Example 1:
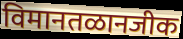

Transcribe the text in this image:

विमानतळानजीक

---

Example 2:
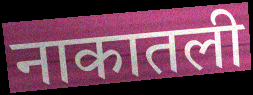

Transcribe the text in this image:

नाकातली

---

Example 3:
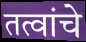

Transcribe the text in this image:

तत्वांचे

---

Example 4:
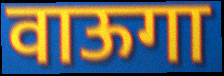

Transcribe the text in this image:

वाऊगा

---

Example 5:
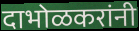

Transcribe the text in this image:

दाभोळकरांनी